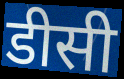
डीसी